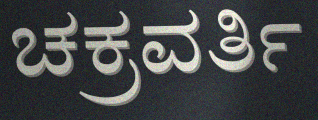
ಚಕ್ರವರ್ತಿ